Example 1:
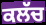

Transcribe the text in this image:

ਕਲੱਚ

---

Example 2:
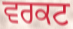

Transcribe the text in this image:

ਵਰਕਟ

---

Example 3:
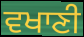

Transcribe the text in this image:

ਵਖਾਣੀ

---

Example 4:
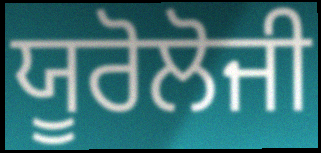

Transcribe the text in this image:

ਯੂਰੋਲੋਜੀ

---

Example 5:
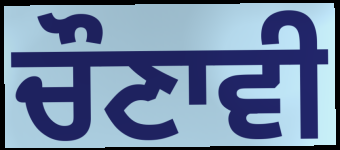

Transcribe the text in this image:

ਚੌਣਾਵੀ